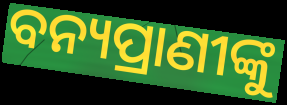
ବନ୍ୟପ୍ରାଣୀଙ୍କୁ